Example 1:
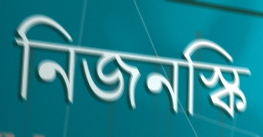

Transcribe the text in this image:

নিজনস্কি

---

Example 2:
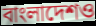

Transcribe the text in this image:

বাংলাদেশও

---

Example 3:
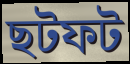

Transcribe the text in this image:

ছটফট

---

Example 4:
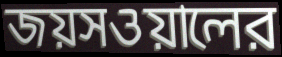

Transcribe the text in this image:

জয়সওয়ালের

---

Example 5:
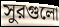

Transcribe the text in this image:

সুরগুলো